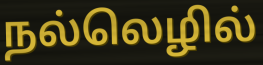
நல்லெழில்